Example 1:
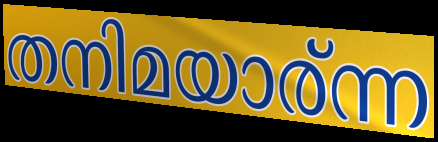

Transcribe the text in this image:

തനിമയാര്ന്ന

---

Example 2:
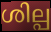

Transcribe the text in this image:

ശില്പ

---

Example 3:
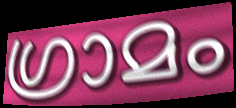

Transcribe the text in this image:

ഗ്രാമം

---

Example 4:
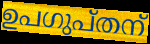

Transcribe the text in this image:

ഉപഗുപ്തന്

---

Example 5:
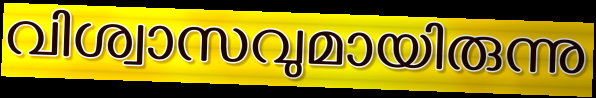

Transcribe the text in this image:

വിശ്വാസവുമായിരുന്നു